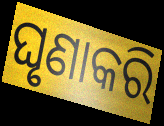
ଘୃଣାକରି